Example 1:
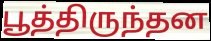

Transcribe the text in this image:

பூத்திருந்தன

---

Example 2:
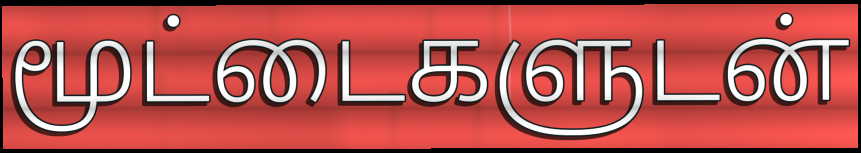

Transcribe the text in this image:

மூட்டைகளுடன்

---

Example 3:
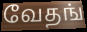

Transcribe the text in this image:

வேதங்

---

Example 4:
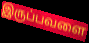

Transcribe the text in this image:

இருப்பவளை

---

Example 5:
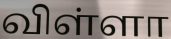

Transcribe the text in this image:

விள்ளா